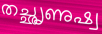
തച്ഛൃണുഷ്വ